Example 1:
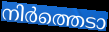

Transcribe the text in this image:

നിർത്തെടാ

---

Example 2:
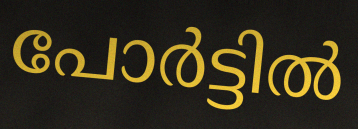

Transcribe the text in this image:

പോർട്ടിൽ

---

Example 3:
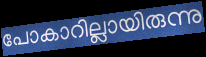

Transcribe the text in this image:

പോകാറില്ലായിരുന്നു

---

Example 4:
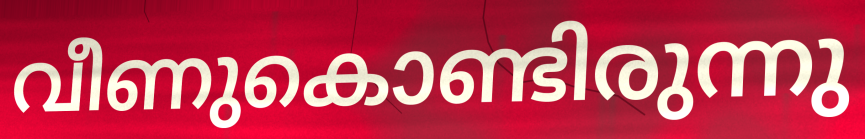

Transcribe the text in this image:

വീണുകൊണ്ടിരുന്നു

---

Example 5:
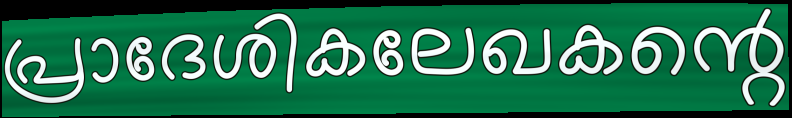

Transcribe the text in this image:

പ്രാദേശികലേഖകന്റെ